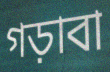
গড়াবা